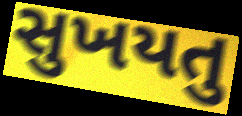
સુખયતુ